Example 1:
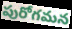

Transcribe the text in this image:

పురోగమన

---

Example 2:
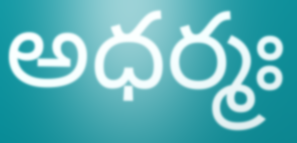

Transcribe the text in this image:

అధర్మః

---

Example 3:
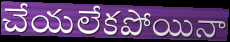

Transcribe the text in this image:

చేయలేకపోయినా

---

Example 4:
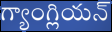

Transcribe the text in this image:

గ్యాంగ్లియన్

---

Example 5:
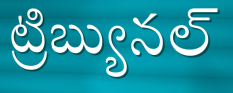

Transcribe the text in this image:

ట్రిబ్యునల్